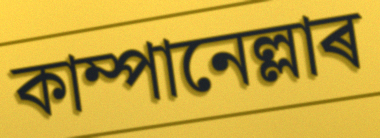
কাম্পানেল্লাৰ